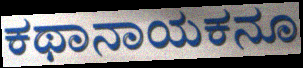
ಕಥಾನಾಯಕನೂ